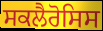
ਸਕਲੈਰੋਸਿਸ